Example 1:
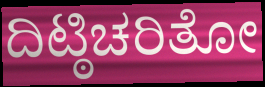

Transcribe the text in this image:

ದಿಟ್ಠಿಚರಿತೋ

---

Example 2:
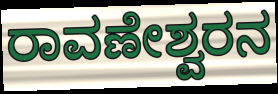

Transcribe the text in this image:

ರಾವಣೇಶ್ವರನ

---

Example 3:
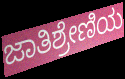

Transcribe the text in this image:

ಜಾತಿಶ್ರೇಣಿಯ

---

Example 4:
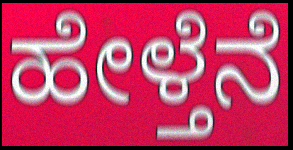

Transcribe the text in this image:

ಹೇಳ್ತೆನೆ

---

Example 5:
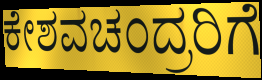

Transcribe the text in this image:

ಕೇಶವಚಂದ್ರರಿಗೆ